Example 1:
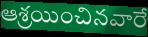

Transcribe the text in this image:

ఆశ్రయించినవారే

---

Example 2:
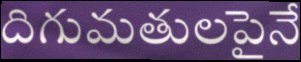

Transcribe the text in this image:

దిగుమతులపైనే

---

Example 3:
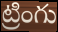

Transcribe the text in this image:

ట్రింగు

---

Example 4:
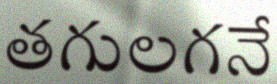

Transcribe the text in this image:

తగులగనే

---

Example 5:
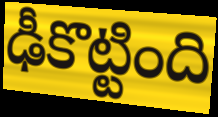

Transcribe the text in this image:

ఢీకొట్టింది